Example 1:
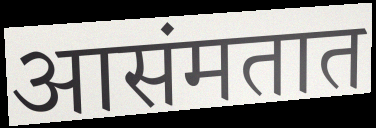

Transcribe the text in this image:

आसंमतात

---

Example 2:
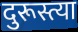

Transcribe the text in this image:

दुरूस्त्या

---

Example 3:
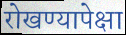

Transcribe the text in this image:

रोखण्यापेक्षा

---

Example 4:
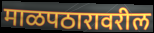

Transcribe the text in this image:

माळपठारावरील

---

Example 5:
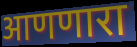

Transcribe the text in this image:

आणणारा